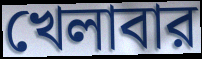
খেলাবার